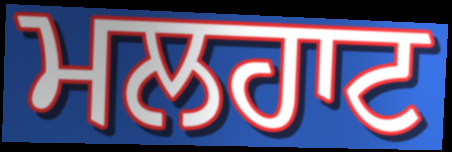
ਮਲਹਾਟ